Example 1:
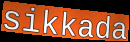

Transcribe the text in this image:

sikkada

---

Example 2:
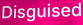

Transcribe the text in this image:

Disguised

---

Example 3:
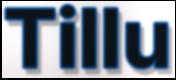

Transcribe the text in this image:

Tillu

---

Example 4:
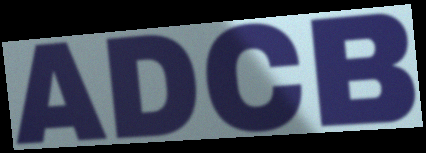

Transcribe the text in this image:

ADCB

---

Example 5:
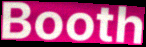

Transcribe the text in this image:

Booth